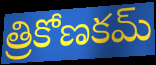
త్రికోణకమ్